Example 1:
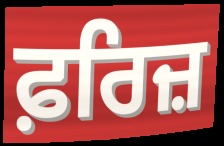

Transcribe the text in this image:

ਫ਼ਰਿਜ਼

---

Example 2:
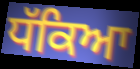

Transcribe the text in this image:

ਧੱਕਿਆ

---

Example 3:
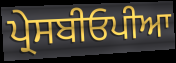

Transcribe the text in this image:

ਪ੍ਰੇਸਬੀਓਪੀਆ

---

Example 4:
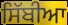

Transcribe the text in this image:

ਸਿੱਬੀਆ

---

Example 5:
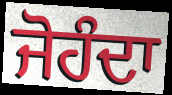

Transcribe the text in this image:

ਜੋਹੰਦਾ